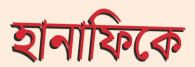
হানাফিকে